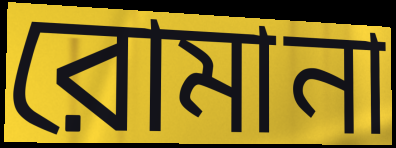
রোমানা